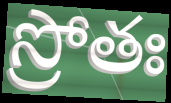
స్రోతః